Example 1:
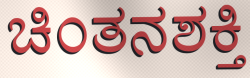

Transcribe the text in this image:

ಚಿಂತನಶಕ್ತಿ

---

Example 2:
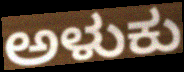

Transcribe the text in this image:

ಅಳುಕು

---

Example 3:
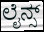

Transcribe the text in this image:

ಲೈನ್ಸ್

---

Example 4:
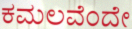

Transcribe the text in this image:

ಕಮಲವೆಂದೇ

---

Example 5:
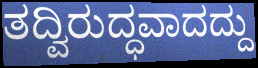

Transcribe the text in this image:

ತದ್ವಿರುದ್ಧವಾದದ್ದು